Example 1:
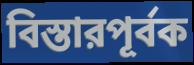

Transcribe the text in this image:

বিস্তারপূর্বক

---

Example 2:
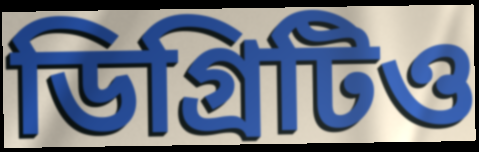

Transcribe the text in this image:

ডিগ্রিটিও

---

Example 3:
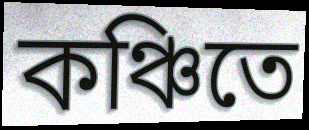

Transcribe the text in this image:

কঞ্চিতে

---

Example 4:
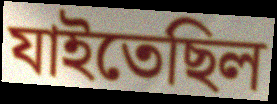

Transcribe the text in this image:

যাইতেছিল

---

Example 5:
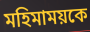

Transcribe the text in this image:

মহিমাময়কে